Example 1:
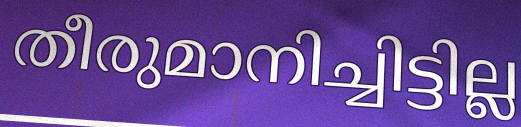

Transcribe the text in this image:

തീരുമാനിച്ചിട്ടില്ല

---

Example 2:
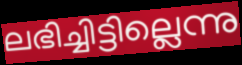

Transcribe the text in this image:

ലഭിച്ചിട്ടില്ലെന്നു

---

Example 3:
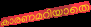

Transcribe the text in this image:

കാരണമറിയാതെ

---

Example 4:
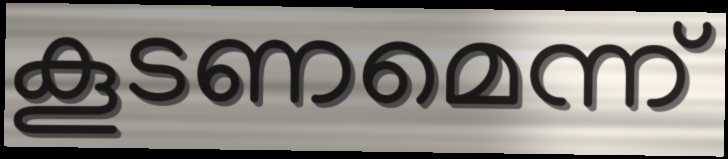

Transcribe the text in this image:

കൂടണമെന്ന്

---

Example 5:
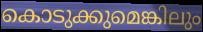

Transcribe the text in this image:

കൊടുക്കുമെങ്കിലും